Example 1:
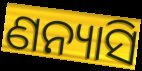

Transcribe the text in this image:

ଣନ୍ୟାସି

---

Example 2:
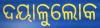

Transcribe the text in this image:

ଦୟାଳୁଲୋକ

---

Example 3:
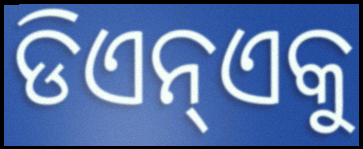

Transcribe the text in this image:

ଡିଏନ୍ଏକୁ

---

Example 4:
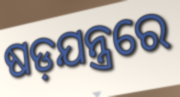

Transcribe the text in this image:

ଷଡ଼ଯନ୍ତ୍ରରେ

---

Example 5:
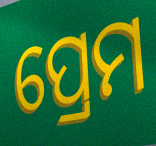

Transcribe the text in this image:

ପ୍ରେମ